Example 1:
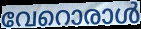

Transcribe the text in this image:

വേറൊരാൾ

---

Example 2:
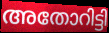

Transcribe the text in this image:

അതോറിട്ടി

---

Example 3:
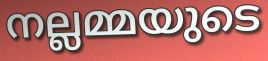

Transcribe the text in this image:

നല്ലമ്മയുടെ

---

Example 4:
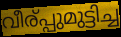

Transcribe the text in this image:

വീര്പ്പുമുട്ടിച്ച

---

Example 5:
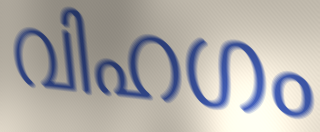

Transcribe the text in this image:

വിഹഗം